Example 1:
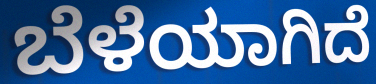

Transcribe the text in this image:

ಬೆಳೆಯಾಗಿದೆ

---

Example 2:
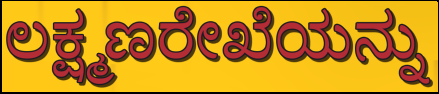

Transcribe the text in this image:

ಲಕ್ಷ್ಮಣರೇಖೆಯನ್ನು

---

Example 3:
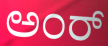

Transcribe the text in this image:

ಅಂರ್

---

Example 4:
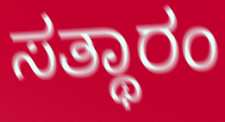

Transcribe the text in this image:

ಸತ್ಥಾರಂ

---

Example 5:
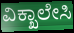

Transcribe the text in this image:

ವಿಕ್ಖಾಲೇಸಿ